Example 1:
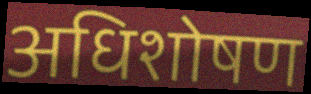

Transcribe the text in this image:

अधिशोषण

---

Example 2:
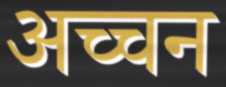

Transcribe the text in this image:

अच्चन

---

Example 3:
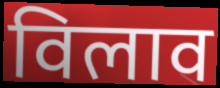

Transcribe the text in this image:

विलाव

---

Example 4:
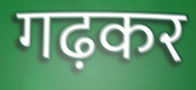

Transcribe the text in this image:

गढ़कर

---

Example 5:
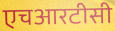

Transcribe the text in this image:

एचआरटीसी